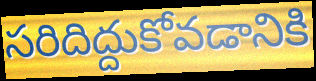
సరిదిద్దుకోవడానికి